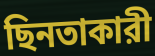
ছিনতাকারী